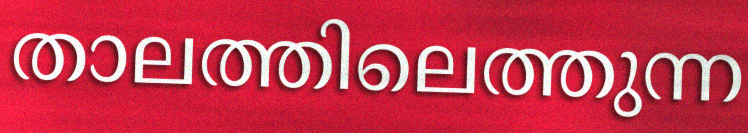
താലത്തിലെത്തുന്ന